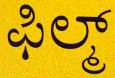
ಫಿಲ್ಮ್